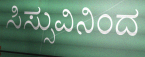
ಸಿಸ್ಸುವಿನಿಂದ